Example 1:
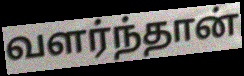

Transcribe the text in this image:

வளர்ந்தான்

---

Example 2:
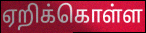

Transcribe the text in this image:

ஏறிக்கொள்ள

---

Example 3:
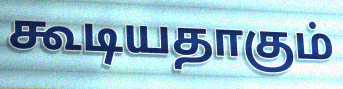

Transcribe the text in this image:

கூடியதாகும்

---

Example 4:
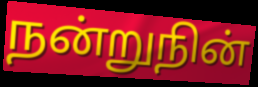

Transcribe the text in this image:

நன்றுநின்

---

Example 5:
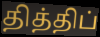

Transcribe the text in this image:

தித்திப்